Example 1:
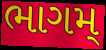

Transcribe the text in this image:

ભાગમ્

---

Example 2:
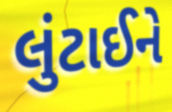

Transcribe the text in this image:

લુંટાઈને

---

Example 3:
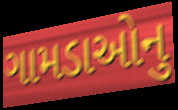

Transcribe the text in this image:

ગામડાઓનુ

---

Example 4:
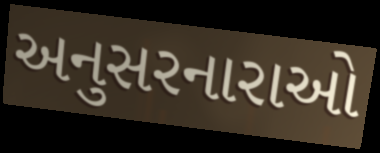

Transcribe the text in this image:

અનુસરનારાઓ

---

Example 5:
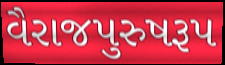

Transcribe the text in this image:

વૈરાજપુરુષરૂપ